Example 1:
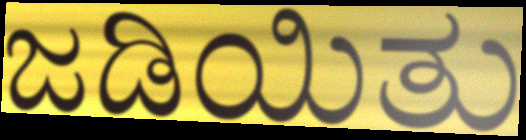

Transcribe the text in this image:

ಜಡಿಯಿತು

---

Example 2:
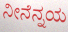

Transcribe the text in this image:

ನೀನೆನ್ನಯ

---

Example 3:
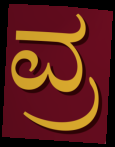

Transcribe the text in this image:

ವ್ರ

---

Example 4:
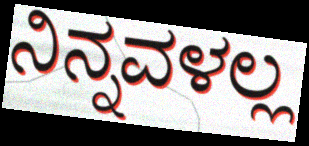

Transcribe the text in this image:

ನಿನ್ನವಳಲ್ಲ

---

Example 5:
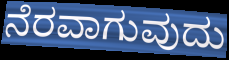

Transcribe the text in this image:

ನೆರವಾಗುವುದು